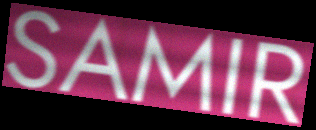
SAMIR